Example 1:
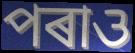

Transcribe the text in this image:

পৰাও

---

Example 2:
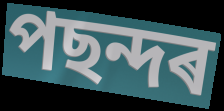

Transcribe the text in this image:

পছন্দৰ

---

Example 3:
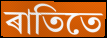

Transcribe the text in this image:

ৰাতিতে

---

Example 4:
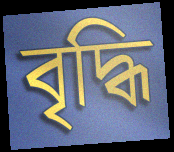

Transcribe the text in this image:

বৃদ্ধি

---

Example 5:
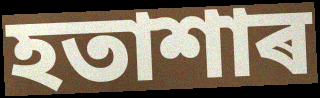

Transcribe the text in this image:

হতাশাৰ